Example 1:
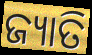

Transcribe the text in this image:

ଜ୍ୟାତି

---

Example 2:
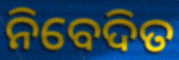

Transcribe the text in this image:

ନିବେଦିତ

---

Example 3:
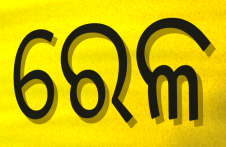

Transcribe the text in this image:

ରେଳ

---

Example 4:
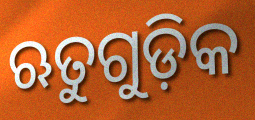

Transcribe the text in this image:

ଋତୁଗୁଡ଼ିକ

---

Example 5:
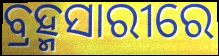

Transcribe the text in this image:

ବ୍ରହ୍ମସାରୀରେ